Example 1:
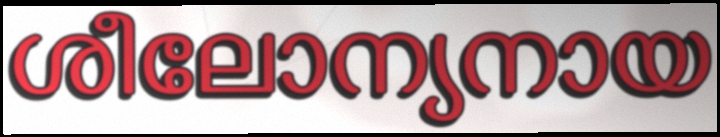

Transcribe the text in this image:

ശീലോന്യനായ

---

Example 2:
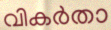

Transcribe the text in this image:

വികർതാ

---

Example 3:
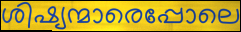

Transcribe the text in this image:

ശിഷ്യന്മാരെപ്പോലെ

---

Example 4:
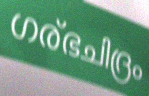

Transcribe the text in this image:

ഗര്ഭചിദ്രം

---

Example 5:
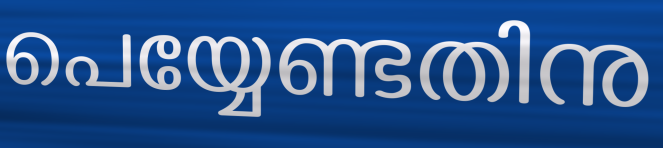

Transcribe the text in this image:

പെയ്യേണ്ടതിനു